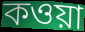
কওয়া